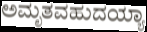
ಅಮೃತವಹುದಯ್ಯಾ